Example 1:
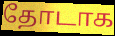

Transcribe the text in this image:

தோடாக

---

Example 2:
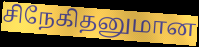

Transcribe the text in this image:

சிநேகிதனுமான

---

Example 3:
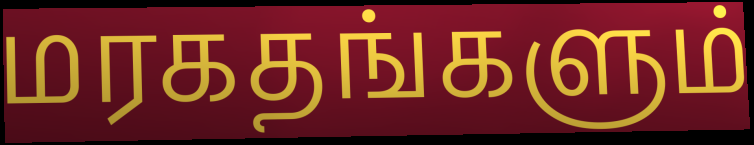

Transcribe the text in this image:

மரகதங்களும்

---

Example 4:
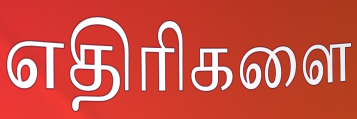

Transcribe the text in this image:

எதிரிகளை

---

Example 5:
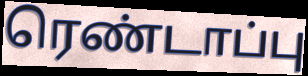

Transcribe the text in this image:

ரெண்டாப்பு